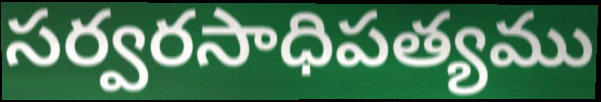
సర్వరసాధిపత్యము